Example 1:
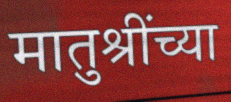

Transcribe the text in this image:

मातुश्रींच्या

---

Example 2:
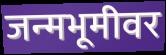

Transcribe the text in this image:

जन्मभूमीवर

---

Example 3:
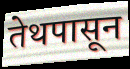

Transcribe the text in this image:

तेथपासून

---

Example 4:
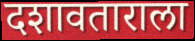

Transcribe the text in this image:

दशावताराला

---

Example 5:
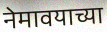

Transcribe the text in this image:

नेमावयाच्या